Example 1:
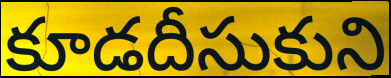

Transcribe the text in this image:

కూడదీసుకుని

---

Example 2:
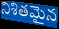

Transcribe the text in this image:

నిశితమైన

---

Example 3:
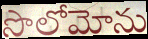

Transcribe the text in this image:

సొలోమోను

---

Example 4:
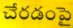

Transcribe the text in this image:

చేరడంపై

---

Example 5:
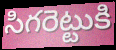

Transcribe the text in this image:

సిగరెట్టుకి